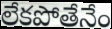
లేకపోతేనేం